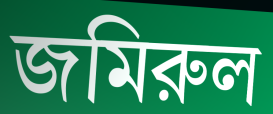
জমিরুল